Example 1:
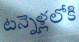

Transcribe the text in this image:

టన్నెళ్లలోకి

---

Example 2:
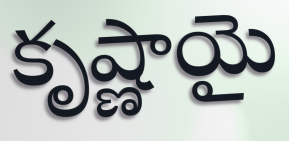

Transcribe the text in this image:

కృష్ణాయై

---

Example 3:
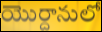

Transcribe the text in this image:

యొర్దానులో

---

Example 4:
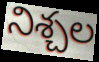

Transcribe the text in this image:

నిశ్చల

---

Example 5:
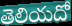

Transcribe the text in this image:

తెలియదో